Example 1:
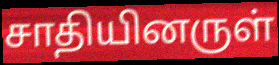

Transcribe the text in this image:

சாதியினருள்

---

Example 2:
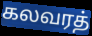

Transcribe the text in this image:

கலவரத்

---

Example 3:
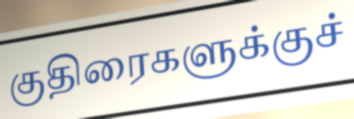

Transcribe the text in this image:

குதிரைகளுக்குச்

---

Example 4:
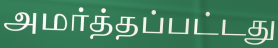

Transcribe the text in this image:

அமர்த்தப்பட்டது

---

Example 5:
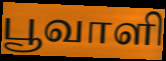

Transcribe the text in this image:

பூவாளி